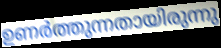
ഉണർത്തുന്നതായിരുന്നു